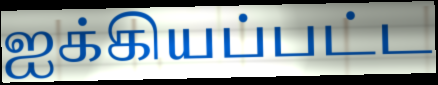
ஐக்கியப்பட்ட